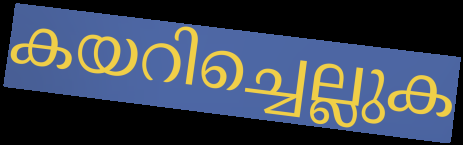
കയറിച്ചെല്ലുക